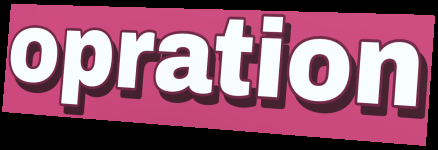
opration